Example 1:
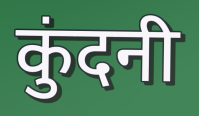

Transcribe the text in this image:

कुंदनी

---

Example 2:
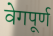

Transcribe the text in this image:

वेगपूर्ण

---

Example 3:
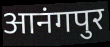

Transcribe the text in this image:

आनंगपुर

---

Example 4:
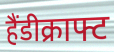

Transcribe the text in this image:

हैंडीक्राफ्ट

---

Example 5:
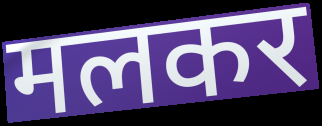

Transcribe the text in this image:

मलकर